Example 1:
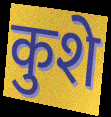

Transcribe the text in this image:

कुशे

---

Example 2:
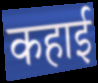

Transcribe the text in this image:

कहाई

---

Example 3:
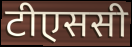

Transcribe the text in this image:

टीएससी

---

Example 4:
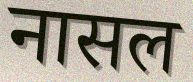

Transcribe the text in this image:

नासल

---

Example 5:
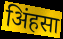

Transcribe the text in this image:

अिंहसा